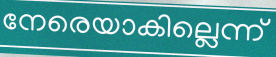
നേരെയാകില്ലെന്ന്